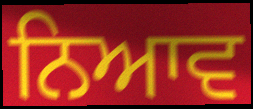
ਨਿਆਵ